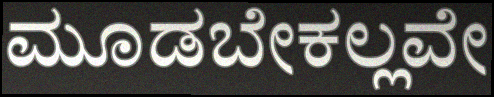
ಮೂಡಬೇಕಲ್ಲವೇ